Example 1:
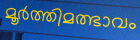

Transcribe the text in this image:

മൂർത്തിമത്ഭാവം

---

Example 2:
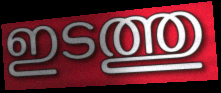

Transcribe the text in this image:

ഇടത്തു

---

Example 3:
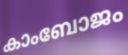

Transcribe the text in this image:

കാംബോജം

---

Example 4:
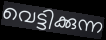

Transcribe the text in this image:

വെട്ടിക്കുന്ന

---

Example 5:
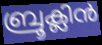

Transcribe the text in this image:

ബ്രൂക്ലിൻ